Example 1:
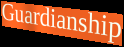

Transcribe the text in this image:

Guardianship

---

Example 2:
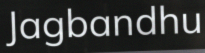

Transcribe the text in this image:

Jagbandhu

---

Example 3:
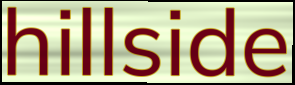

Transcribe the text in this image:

hillside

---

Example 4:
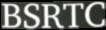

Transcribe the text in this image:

BSRTC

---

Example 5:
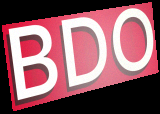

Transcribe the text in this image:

BDO